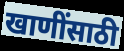
खाणींसाठी